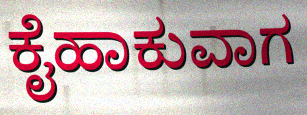
ಕೈಹಾಕುವಾಗ